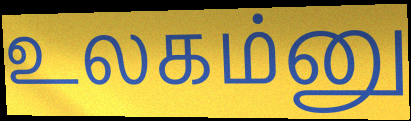
உலகம்னு